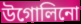
উগোলিনো